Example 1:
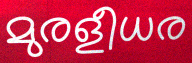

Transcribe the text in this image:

മുരളീധര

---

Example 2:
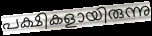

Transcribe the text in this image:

പക്ഷികളായിരുന്നു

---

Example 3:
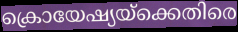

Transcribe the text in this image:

ക്രൊയേഷ്യയ്ക്കെതിരെ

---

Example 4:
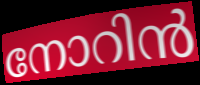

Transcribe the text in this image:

നോറിൻ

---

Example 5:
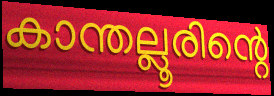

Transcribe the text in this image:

കാന്തല്ലൂരിന്റെ